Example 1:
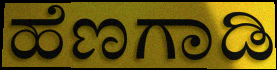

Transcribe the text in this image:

ಹೆಣಗಾಡಿ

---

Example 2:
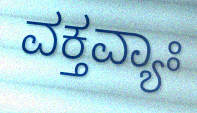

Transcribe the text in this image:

ವಕ್ತವ್ಯಾಃ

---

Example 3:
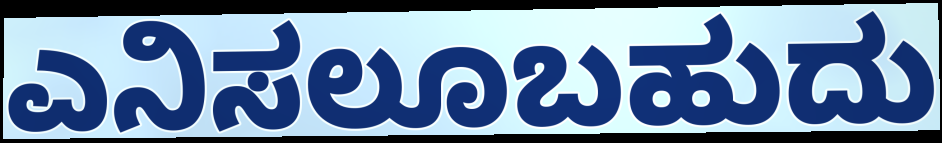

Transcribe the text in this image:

ಎನಿಸಲೂಬಹುದು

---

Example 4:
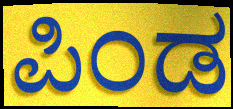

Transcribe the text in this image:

ಪಿಂಡ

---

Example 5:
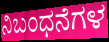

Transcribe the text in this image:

ನಿಬಂಧನೆಗಳ